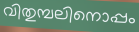
വിതുമ്പലിനൊപ്പം